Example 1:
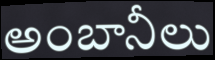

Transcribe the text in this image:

అంబానీలు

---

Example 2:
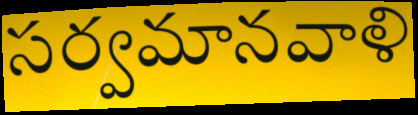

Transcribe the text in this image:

సర్వమానవాళి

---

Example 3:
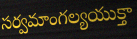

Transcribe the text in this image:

సర్వమాంగల్యయుక్తా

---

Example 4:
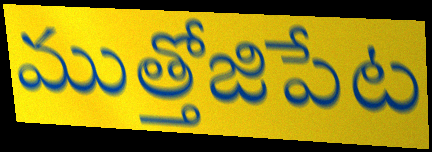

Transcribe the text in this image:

ముత్తోజిపేట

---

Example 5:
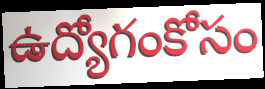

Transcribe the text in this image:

ఉద్యోగంకోసం